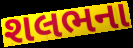
શલભના